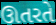
ઊતરતે